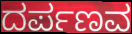
ದರ್ಪಣವ